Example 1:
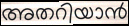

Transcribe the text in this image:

അതറിയാൻ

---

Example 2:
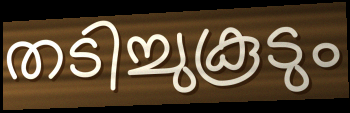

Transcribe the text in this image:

തടിച്ചുകൂടും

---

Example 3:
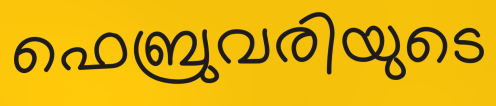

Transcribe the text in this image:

ഫെബ്രുവരിയുടെ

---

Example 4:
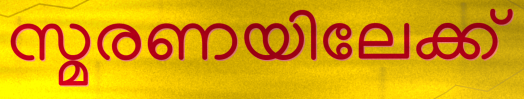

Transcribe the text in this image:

സ്മരണയിലേക്ക്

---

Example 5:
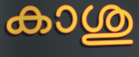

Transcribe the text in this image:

കാശു